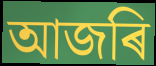
আজৰি